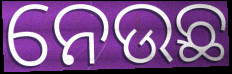
ନେଉଛ